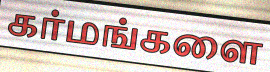
கர்மங்களை